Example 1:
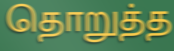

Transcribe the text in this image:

தொறுத்த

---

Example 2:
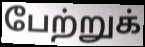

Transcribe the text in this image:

பேற்றுக்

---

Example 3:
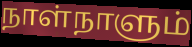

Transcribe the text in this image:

நாள்நாளும்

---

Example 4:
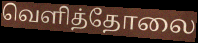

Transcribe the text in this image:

வெளித்தோலை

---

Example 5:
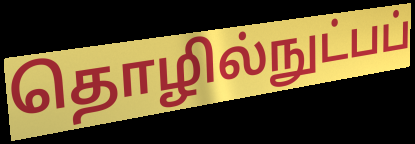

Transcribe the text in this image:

தொழில்நுட்பப்